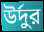
উর্দুর